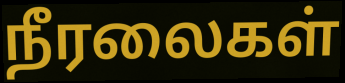
நீரலைகள்